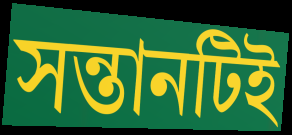
সন্তানটিই